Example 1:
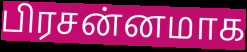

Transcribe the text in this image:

பிரசன்னமாக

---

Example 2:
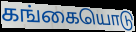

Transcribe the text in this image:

கங்கையொடு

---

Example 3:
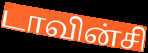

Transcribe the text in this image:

டாவின்சி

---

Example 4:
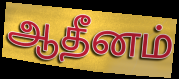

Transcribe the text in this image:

ஆதீனம்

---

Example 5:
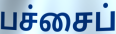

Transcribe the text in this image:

பச்சைப்